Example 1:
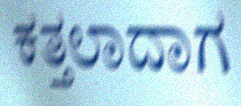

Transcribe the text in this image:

ಕತ್ತಲಾದಾಗ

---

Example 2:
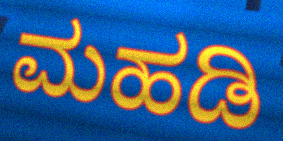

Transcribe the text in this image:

ಮಹಡಿ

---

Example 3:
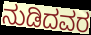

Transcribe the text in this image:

ನುಡಿದವರ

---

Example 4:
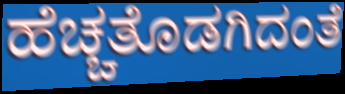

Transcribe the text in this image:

ಹೆಚ್ಚತೊಡಗಿದಂತೆ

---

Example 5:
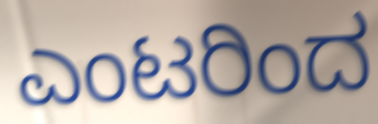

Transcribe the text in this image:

ಎಂಟರಿಂದ